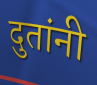
दुतांनी